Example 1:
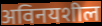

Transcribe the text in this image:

अविनयशील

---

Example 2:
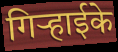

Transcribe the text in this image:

गिर्‍हाईके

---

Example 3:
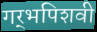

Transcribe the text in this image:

गर्भपिशवी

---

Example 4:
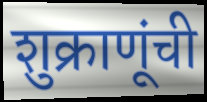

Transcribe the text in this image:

शुक्राणूंची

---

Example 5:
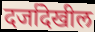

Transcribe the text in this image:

दर्जादेखील